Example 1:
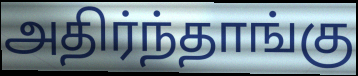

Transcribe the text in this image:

அதிர்ந்தாங்கு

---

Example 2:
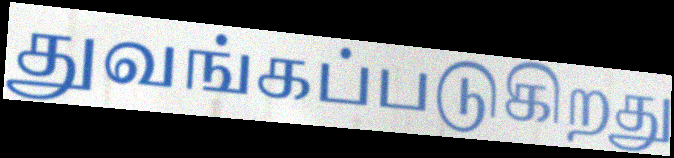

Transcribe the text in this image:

துவங்கப்படுகிறது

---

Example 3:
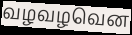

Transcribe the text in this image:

வழவழவென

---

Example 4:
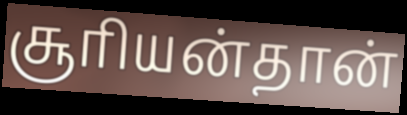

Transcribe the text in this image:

சூரியன்தான்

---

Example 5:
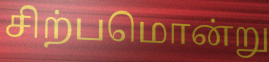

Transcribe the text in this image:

சிற்பமொன்று